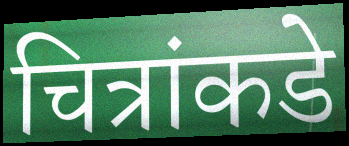
चित्रांकडे